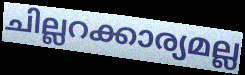
ചില്ലറക്കാര്യമല്ല